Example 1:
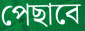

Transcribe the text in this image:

পেছাবে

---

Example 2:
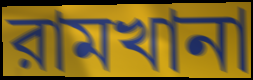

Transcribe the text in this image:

রামখানা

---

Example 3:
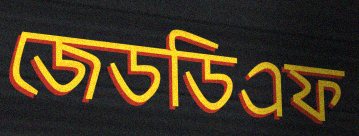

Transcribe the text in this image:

জেডডিএফ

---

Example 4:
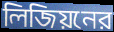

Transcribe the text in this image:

লিজিয়নের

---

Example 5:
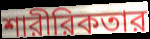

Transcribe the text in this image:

শারীরিকতার